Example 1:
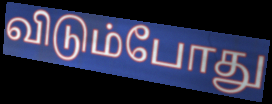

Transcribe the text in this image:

விடும்போது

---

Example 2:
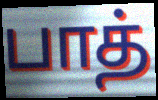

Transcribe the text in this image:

பாத்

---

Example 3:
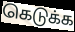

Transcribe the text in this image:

கெடுக்க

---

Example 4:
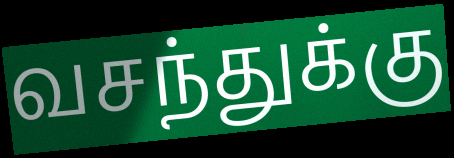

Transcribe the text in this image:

வசந்துக்கு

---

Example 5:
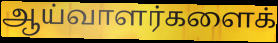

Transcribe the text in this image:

ஆய்வாளர்களைக்